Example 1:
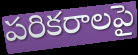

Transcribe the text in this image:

పరికరాలపై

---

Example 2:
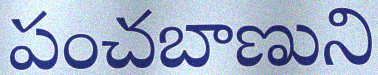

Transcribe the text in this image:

పంచబాణుని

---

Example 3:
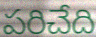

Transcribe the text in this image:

పరిచేది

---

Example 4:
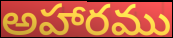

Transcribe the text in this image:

అహారము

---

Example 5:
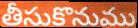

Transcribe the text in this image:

తీసుకొనుము